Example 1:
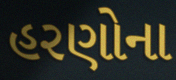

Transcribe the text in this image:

હરણોના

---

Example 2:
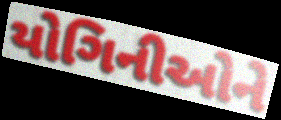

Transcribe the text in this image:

યોગિનીઓને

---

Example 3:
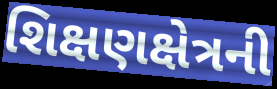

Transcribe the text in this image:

શિક્ષણક્ષેત્રની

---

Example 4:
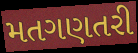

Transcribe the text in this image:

મતગણતરી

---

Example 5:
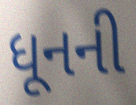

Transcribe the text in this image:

ધૂનની